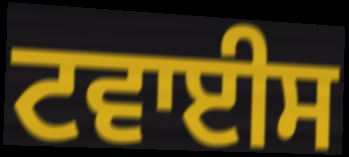
ਟਵਾਈਸ